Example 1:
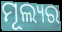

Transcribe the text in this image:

ମୂଲ୍ଯର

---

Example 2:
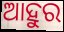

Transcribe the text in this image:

ଆହୁର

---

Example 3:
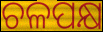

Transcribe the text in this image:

ଚଳପକ୍ଷ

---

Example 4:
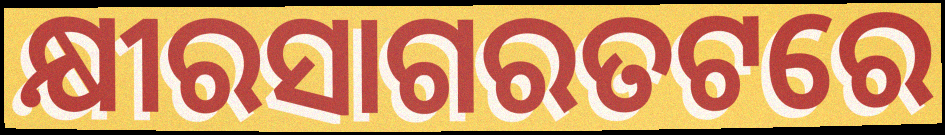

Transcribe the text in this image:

କ୍ଷୀରସାଗରତଟରେ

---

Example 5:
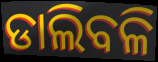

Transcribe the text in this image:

ଡାଲିବଳି